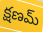
క్షణమ్